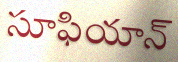
సూఫియాన్